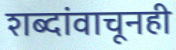
शब्दांवाचूनही